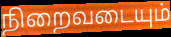
நிறைவடையும்